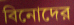
বিনোদের